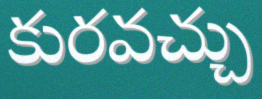
కురవచ్చు